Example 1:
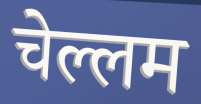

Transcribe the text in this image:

चेल्लम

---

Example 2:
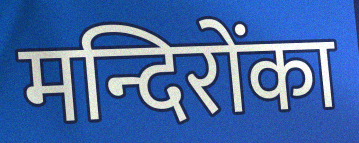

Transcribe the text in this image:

मन्दिरोंका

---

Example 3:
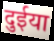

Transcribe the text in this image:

दुईया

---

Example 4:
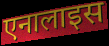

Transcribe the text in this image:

एनालाइस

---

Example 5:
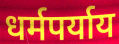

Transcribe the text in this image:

धर्मपर्याय